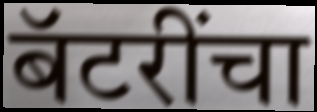
बॅटरींचा